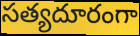
సత్యదూరంగా